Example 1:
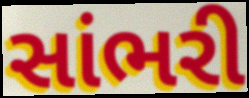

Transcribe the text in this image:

સાંભરી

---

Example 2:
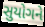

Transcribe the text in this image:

સુયોગને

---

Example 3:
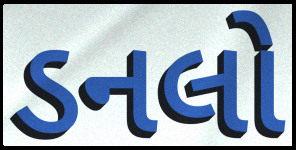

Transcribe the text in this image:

ડનલો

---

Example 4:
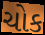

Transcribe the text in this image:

ચોક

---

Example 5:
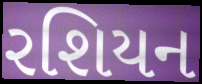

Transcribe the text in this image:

રશિયન